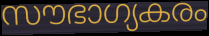
സൗഭാഗ്യകരം